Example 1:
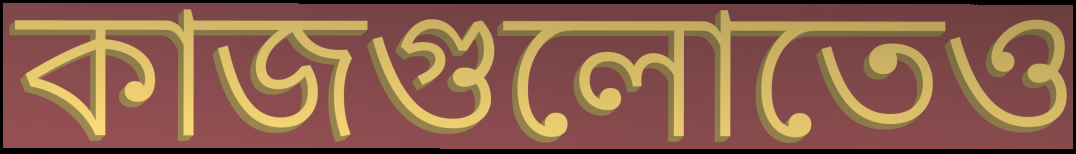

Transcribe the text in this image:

কাজগুলোতেও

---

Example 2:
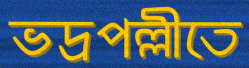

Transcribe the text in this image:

ভদ্রপল্লীতে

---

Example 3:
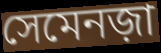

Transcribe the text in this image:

সেমেনজ়া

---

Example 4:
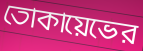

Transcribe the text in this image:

তোকায়েভের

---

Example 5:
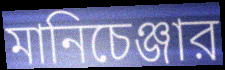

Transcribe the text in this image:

মানিচেঞ্জার